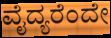
ವೈದ್ಯರೆಂದೇ